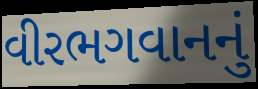
વીરભગવાનનું